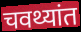
चवथ्यांत